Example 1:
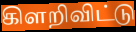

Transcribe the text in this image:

கிளறிவிட்டு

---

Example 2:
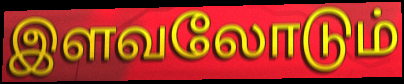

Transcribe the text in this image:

இளவலோடும்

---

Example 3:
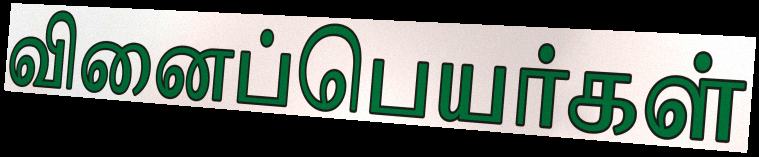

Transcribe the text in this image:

வினைப்பெயர்கள்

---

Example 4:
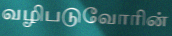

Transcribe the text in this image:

வழிபடுவோரின்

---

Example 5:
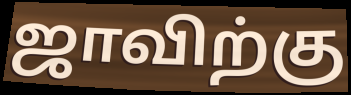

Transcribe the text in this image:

ஜாவிற்கு